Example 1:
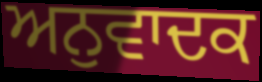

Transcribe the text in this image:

ਅਨੁਵਾਦਕ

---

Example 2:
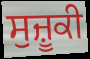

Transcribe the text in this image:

ਸੁਜ਼ੂਕੀ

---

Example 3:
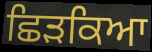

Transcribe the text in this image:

ਛਿੜਕਿਆ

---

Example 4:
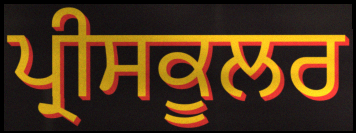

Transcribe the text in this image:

ਪ੍ਰੀਸਕੂਲਰ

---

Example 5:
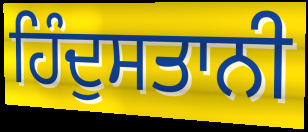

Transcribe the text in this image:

ਹਿੰਦੁਸਤਾਨੀ